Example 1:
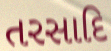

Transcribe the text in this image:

તરસાદિ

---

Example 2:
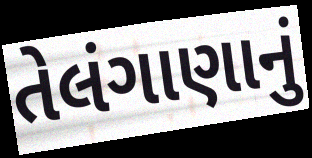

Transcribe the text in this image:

તેલંગાણાનું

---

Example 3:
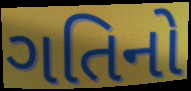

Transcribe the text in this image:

ગતિનો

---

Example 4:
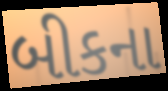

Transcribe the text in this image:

બીકના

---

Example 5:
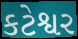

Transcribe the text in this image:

કટેશ્વર